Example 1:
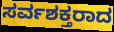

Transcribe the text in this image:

ಸರ್ವಶಕ್ತರಾದ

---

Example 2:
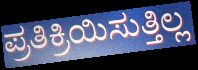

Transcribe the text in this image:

ಪ್ರತಿಕ್ರಿಯಿಸುತ್ತಿಲ್ಲ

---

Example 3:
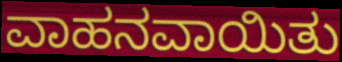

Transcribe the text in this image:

ವಾಹನವಾಯಿತು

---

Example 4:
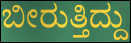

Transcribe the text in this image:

ಬೀರುತ್ತಿದ್ದು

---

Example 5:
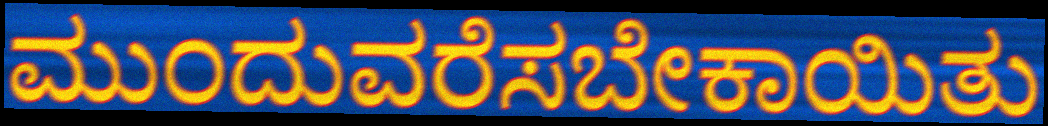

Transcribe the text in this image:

ಮುಂದುವರೆಸಬೇಕಾಯಿತು